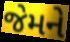
જેમને